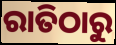
ରାତିଠାରୁ